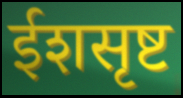
ईशसृष्ट